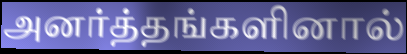
அனர்த்தங்களினால்